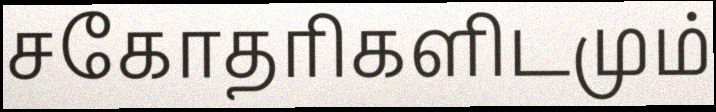
சகோதரிகளிடமும்